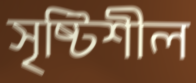
সৃষ্টিশীল